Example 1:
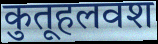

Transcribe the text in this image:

कुतूहलवश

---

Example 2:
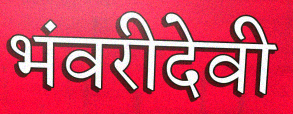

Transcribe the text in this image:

भंवरीदेवी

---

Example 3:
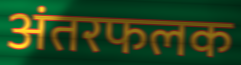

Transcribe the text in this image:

अंतरफलक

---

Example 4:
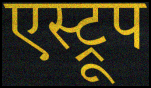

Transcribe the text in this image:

एस्ट्रूप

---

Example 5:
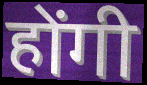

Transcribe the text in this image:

होंगी